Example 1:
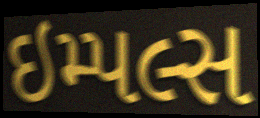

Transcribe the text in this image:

ઇમ્પલ્સ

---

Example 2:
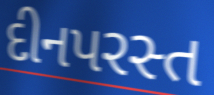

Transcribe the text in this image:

દીનપરસ્ત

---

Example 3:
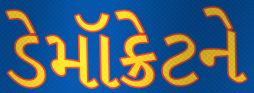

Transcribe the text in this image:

ડેમૉક્રેટને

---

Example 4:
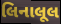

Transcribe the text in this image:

લિનાલૂલ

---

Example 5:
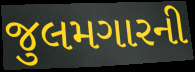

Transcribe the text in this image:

જુલમગારની